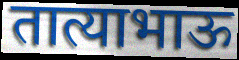
तात्याभाऊ